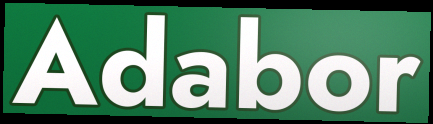
Adabor